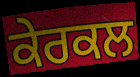
ਕੇਰਕਲ